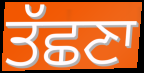
ਤੱਛਣਾ